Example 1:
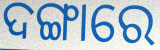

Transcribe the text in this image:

ଦଙ୍ଗାରେ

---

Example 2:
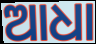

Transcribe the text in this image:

ଆଧା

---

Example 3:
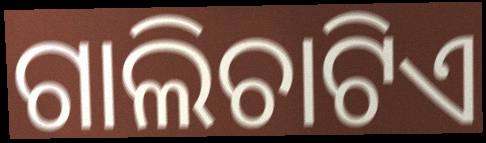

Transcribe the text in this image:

ଗାଲିଚାଟିଏ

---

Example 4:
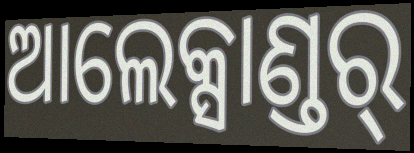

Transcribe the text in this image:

ଆଲେକ୍ସାଣ୍ଡର୍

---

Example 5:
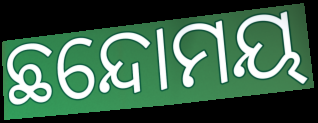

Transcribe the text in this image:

ଛନ୍ଦୋମୟ